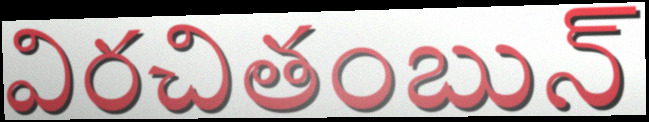
విరచితంబున్